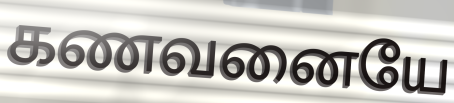
கணவனையே